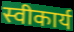
स्वीकार्य